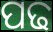
ପଢ